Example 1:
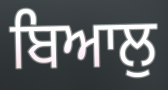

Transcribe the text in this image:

ਬਿਆਲੁ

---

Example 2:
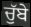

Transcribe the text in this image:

ਚੁੱਬੇ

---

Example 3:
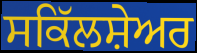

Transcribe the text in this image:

ਸਕਿੱਲਸ਼ੇਅਰ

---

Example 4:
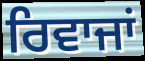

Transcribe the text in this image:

ਰਿਵਾਜਾਂ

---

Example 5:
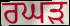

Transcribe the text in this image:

ਰਘੜ